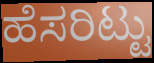
ಹೆಸರಿಟ್ಟು